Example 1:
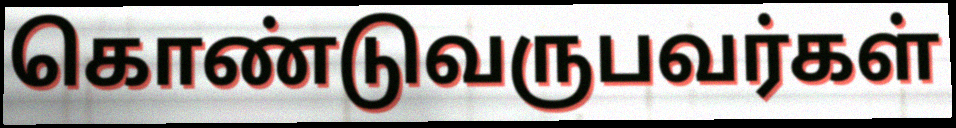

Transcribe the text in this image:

கொண்டுவருபவர்கள்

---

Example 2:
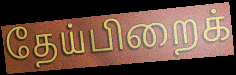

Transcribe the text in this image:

தேய்பிறைக்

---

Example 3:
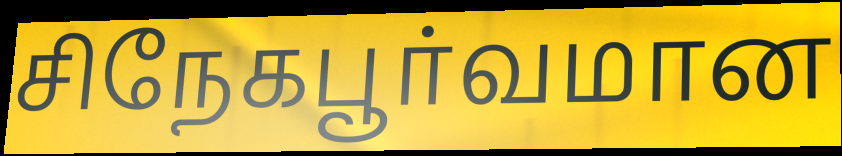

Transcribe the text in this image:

சிநேகபூர்வமான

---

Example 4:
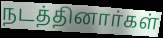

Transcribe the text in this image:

நடத்தினார்கள்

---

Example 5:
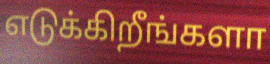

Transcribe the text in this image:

எடுக்கிறீங்களா